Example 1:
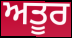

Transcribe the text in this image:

ਅਤੂਰ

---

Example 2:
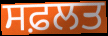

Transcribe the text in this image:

ਸਫ਼ਲਤ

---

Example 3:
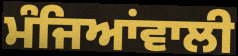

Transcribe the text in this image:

ਮੰਜਿਆਂਵਾਲੀ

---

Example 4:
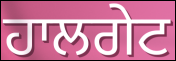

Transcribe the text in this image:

ਹਾਲਗੇਟ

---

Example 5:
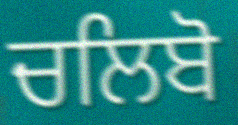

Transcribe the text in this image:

ਚਲਿਬੋ